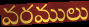
వరములు